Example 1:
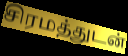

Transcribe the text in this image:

சிரமத்துடன்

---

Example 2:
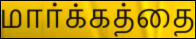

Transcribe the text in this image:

மார்க்கத்தை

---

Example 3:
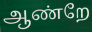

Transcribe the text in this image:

ஆண்றே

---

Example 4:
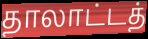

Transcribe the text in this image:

தாலாட்டத்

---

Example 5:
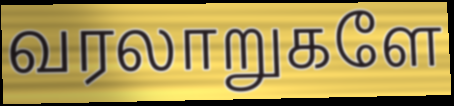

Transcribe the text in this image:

வரலாறுகளே